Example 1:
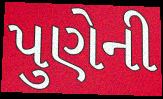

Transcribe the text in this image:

પુણેની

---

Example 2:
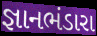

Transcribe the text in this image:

જ્ઞાનભંડારા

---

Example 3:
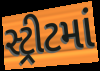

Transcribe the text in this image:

સ્ટ્રીટમાં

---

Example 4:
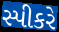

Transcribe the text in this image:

સ્પીકરે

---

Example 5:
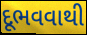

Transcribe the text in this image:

દૂભવવાથી